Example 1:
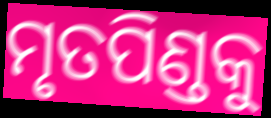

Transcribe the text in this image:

ମୃତପିଣ୍ଡକୁ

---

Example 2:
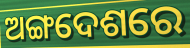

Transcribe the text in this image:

ଅଙ୍ଗଦେଶରେ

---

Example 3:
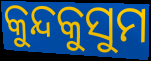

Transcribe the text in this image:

କୁନ୍ଦକୁସୁମ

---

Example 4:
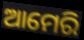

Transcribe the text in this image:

ଆମେରି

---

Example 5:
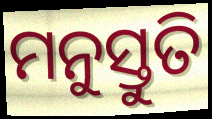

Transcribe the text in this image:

ମନୁସ୍ତୁତି